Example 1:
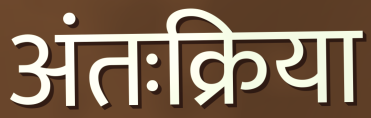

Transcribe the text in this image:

अंतःक्रिया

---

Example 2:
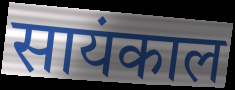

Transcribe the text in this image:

सायंकाल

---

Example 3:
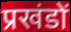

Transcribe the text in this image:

प्रखंडों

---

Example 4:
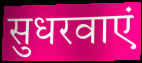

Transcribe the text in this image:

सुधरवाएं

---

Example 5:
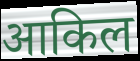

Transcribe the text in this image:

आकिल